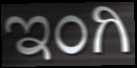
ಇಂಗಿ